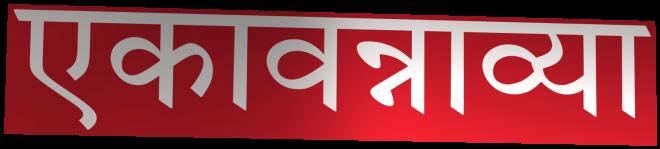
एकावन्नाव्या